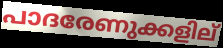
പാദരേണുക്കളില്